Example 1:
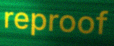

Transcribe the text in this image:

reproof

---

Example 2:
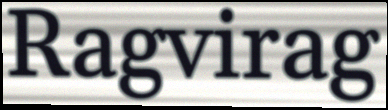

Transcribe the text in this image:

Ragvirag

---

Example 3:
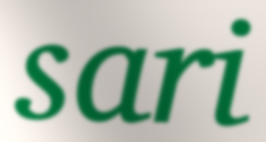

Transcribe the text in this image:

sari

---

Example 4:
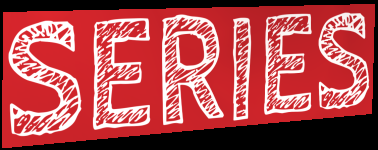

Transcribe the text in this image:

SERIES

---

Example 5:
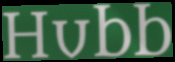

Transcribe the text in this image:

Hubb